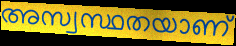
അസ്വസ്ഥതയാണ്